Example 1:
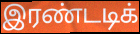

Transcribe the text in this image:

இரண்டடிக்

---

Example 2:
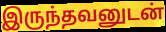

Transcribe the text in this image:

இருந்தவனுடன்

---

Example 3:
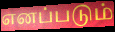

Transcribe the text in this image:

எனப்படும்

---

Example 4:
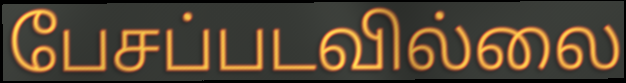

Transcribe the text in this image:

பேசப்படவில்லை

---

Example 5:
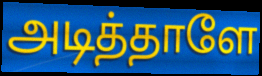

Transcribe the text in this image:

அடித்தாளே